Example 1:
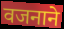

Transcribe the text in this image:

वजनाने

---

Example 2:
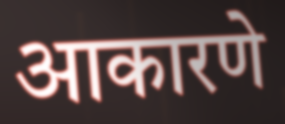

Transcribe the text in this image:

आकारणे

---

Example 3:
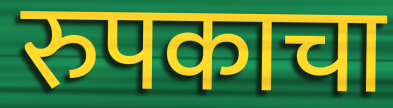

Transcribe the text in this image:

रुपकाचा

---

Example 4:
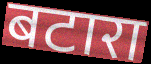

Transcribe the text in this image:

बटारा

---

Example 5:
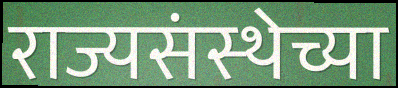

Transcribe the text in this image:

राज्यसंस्थेच्या